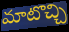
మాటొచ్చి